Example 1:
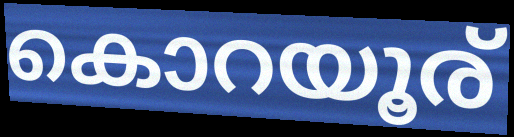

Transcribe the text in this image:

കൊറയൂര്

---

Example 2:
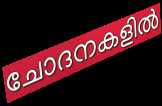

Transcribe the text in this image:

ചോദനകളിൽ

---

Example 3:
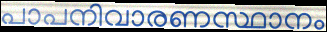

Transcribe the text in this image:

പാപനിവാരണസ്ഥാനം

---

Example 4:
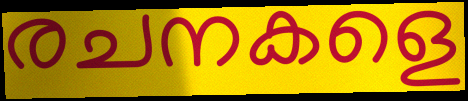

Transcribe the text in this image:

രചനകളെ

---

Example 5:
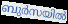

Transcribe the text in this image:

ബുർസയിൽ